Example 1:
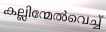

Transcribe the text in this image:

കല്ലിന്മേൽവെച്ച്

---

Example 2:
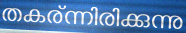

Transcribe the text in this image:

തകര്ന്നിരിക്കുന്നു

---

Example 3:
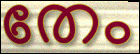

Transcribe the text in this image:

തേം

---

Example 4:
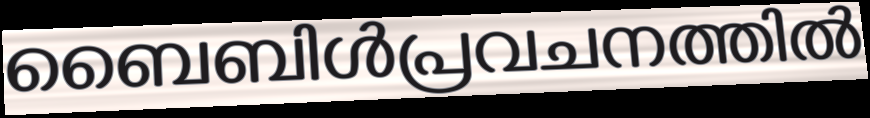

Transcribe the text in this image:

ബൈബിൾപ്രവചനത്തിൽ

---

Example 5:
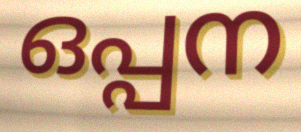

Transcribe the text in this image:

ഒപ്പന